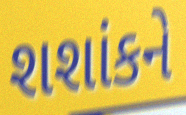
શશાંકને